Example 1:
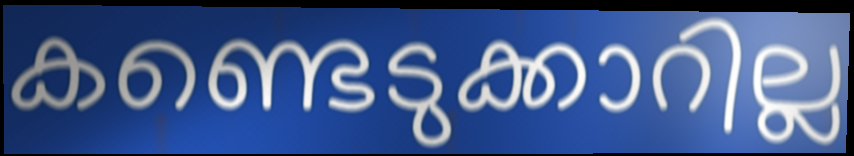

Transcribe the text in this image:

കണ്ടെടുക്കാറില്ല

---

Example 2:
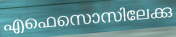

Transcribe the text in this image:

എഫെസൊസിലേക്കു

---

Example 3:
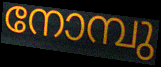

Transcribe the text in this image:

നോമ്പു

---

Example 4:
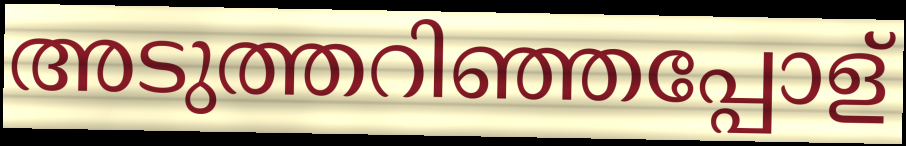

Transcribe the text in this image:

അടുത്തറിഞ്ഞപ്പോള്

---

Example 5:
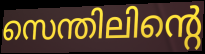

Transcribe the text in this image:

സെന്തിലിന്റെ